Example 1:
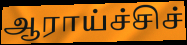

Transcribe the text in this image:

ஆராய்ச்சிச்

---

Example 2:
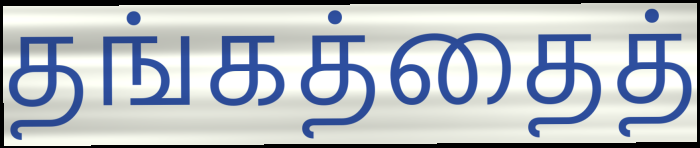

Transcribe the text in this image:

தங்கத்தைத்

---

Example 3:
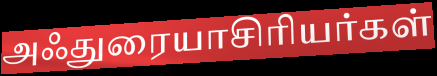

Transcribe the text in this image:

அஃதுரையாசிரியர்கள்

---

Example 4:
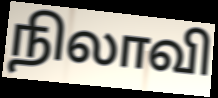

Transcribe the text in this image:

நிலாவி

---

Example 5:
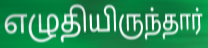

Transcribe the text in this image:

எழுதியிருந்தார்